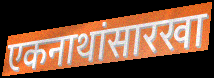
एकनाथांसारखा